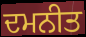
ਦਮਨੀਤ